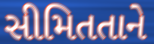
સીમિતતાને